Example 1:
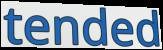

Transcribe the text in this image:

tended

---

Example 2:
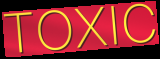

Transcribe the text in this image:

TOXIC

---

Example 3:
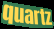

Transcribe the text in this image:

quartz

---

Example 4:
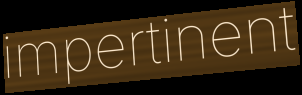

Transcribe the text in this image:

impertinent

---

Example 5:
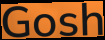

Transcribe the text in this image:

Gosh